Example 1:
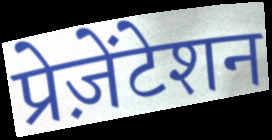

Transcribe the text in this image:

प्रेज़ेंटेशन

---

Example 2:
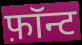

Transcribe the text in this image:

फ़ॉन्ट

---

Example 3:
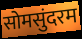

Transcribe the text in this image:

सोमसुंदरम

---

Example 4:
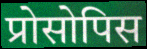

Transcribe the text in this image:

प्रोसोपिस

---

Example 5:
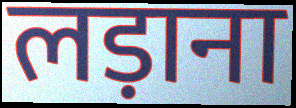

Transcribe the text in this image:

लड़ाना